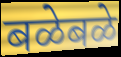
बळेबळे